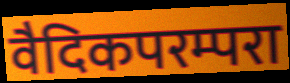
वैदिकपरम्परा